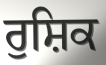
ਰੁਸ਼ਿਕ